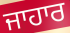
ਜਾਹਾਰ